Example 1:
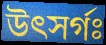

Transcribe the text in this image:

উৎসর্গঃ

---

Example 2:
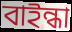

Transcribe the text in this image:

বাইন্ধা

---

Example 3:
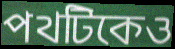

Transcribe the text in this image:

পথটিকেও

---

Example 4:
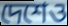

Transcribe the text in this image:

দেশেও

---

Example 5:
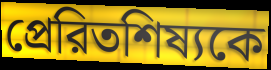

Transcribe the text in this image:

প্রেরিতশিষ্যকে